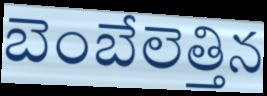
బెంబేలెత్తిన